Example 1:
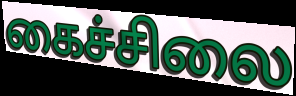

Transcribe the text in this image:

கைச்சிலை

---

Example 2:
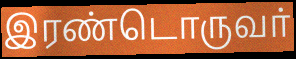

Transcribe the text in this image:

இரண்டொருவர்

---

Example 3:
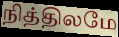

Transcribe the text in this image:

நித்திலமே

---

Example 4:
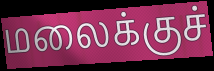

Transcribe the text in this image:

மலைக்குச்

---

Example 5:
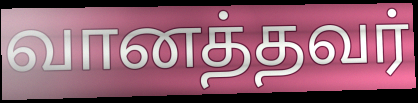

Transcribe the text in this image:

வானத்தவர்